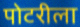
पोटरीला